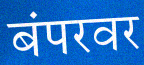
बंपरवर